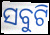
ସବୁଟି